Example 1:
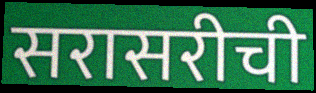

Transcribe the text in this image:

सरासरीची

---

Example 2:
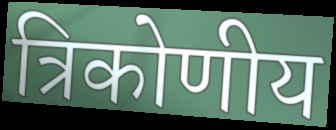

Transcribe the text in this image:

त्रिकोणीय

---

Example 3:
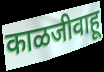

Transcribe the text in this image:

काळजीवाहू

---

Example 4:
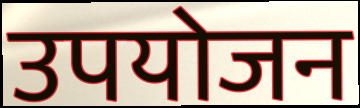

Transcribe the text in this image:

उपयोजन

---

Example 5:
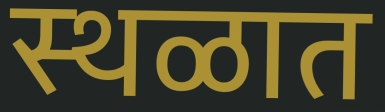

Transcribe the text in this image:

स्थळात